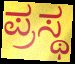
ಪ್ರಸ್ಥ